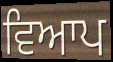
ਵਿਆਪ